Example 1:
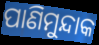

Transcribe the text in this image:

ପାଣିମୁନ୍ଦାକ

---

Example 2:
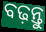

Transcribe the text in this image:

ବଢ଼ନ୍ତୁ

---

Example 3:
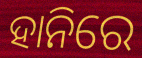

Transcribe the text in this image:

ହାନିରେ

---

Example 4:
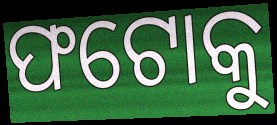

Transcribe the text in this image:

ଫଟୋକୁ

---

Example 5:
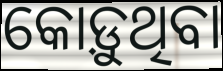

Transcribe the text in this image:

କୋଡ଼ୁଥିବା